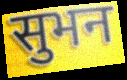
सुभन